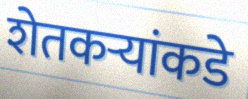
शेतकर्‍यांकडे